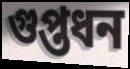
গুপ্তধন